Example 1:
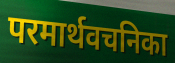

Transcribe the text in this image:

परमार्थवचनिका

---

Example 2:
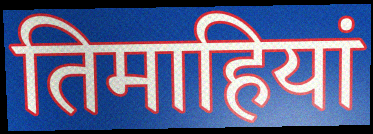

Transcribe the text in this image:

तिमाहियां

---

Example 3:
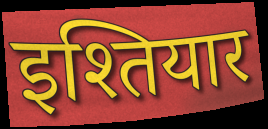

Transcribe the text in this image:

इश्तियार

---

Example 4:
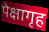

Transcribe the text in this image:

पेक्षागृह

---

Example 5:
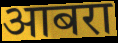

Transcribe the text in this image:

आबरा